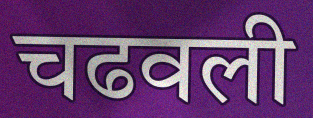
चढवली